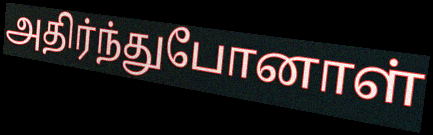
அதிர்ந்துபோனாள்